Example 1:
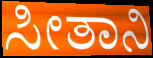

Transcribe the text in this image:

ಸೀತಾನಿ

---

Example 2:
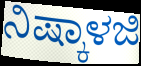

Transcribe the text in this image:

ನಿಷ್ಕಾಳಜಿ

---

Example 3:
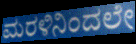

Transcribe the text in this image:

ಮರಳಿನಿಂದಲೇ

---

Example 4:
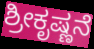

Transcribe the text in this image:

ಶ್ರೀಕೃಷ್ಣನೆ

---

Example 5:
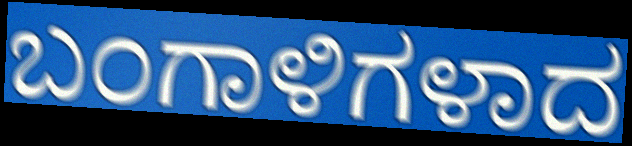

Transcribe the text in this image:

ಬಂಗಾಳಿಗಳಾದ